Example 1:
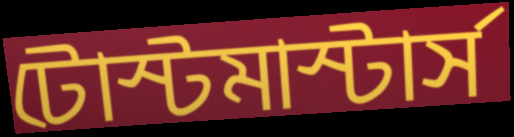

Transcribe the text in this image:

টোস্টমাস্টার্স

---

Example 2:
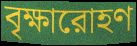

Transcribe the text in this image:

বৃক্ষারোহণ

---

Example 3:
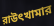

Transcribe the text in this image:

রাউৎখামার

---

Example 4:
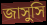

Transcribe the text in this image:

জাসুসি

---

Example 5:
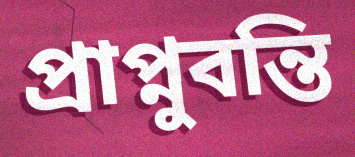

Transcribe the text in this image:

প্রাপ্নুবন্তি